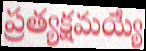
ప్రత్యక్షమయ్యే